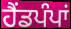
ਹੈਂਡਪੰਪਾਂ